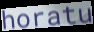
horatu